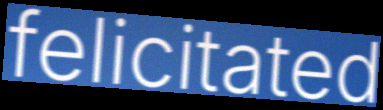
felicitated